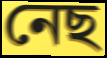
নেছ